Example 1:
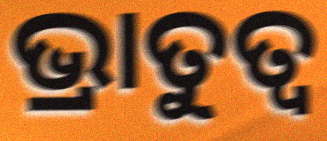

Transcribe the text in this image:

ଭ୍ରାତୁତ୍ଵ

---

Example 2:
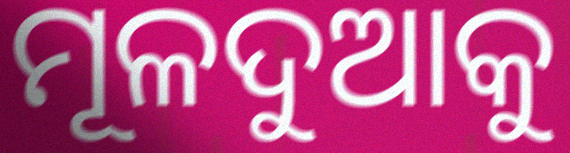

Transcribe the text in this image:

ମୂଳଦୁଆକୁ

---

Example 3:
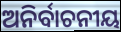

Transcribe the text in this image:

ଅନିର୍ବାଚନୀୟ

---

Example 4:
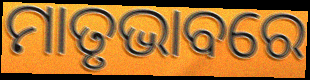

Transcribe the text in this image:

ମାତୃଭାବରେ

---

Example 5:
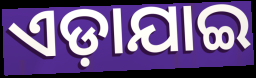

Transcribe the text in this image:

ଏଡ଼ାଯାଇ